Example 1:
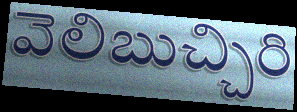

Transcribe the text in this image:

వెలిబుచ్చిరి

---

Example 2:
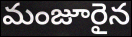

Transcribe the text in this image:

మంజూరైన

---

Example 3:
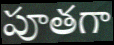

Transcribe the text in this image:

పూతగా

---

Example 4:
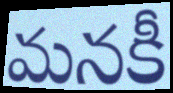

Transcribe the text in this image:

మనకీ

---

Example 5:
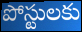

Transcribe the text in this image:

పోస్టులకు